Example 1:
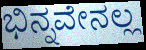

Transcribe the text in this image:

ಭಿನ್ನವೇನಲ್ಲ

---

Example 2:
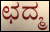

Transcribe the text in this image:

ಛದ್ಮ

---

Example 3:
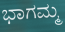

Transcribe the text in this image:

ಭಾಗಮ್ಮ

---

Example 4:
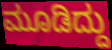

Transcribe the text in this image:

ಮೂಡಿದ್ದು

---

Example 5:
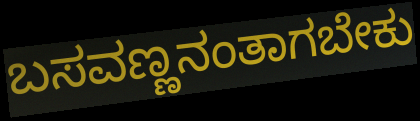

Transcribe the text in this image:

ಬಸವಣ್ಣನಂತಾಗಬೇಕು